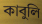
কাবুলি